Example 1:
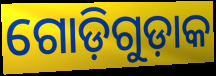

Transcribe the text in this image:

ଗୋଡ଼ିଗୁଡ଼ାକ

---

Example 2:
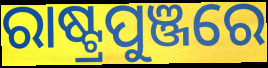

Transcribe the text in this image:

ରାଷ୍ଟ୍ରପୁଞ୍ଜରେ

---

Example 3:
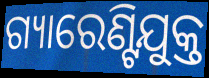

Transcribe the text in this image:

ଗ୍ୟାରେଣ୍ଟିଯୁକ୍ତ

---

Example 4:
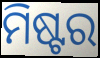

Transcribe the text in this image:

ମିଷ୍ଟର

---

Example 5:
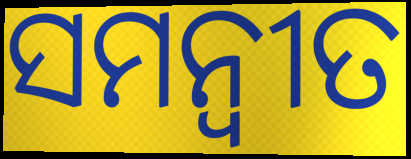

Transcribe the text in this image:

ସମନ୍ଵୀତ